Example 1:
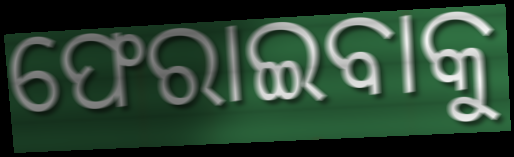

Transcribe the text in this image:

ଫେରାଇବାକୁ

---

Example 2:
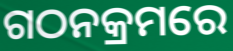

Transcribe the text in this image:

ଗଠନକ୍ରମରେ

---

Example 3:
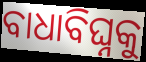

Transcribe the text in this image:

ବାଧାବିଘ୍ନକୁ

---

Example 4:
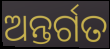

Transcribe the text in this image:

ଅନ୍ତର୍ଗତ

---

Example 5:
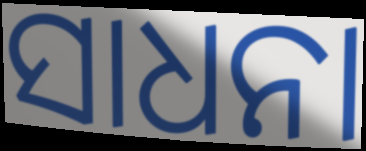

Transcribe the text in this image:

ସାଧନା